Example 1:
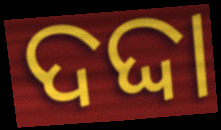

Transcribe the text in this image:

ଦଦ୍ଦା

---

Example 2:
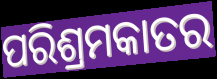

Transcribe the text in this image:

ପରିଶ୍ରମକାତର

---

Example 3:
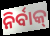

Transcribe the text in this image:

ନିର୍ବାକ୍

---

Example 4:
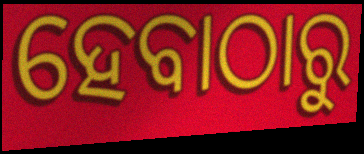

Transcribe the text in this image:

ହେବାଠାରୁ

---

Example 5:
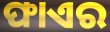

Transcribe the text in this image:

ଫାଏର